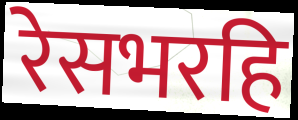
रेसभरहि